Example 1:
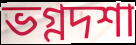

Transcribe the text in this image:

ভগ্নদশা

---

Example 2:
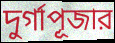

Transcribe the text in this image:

দুর্গাপূজার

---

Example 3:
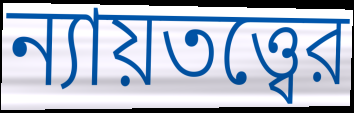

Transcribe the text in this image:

ন্যায়তত্ত্বের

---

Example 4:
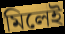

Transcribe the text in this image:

মিলেই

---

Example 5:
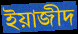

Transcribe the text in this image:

ইয়াজীদ